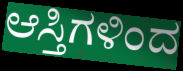
ಆಸ್ತಿಗಳಿಂದ